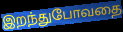
இறந்துபோவதை